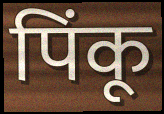
पिंकू